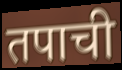
तपाची